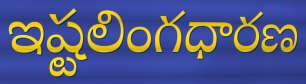
ఇష్టలింగధారణ